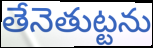
తేనెతుట్టను